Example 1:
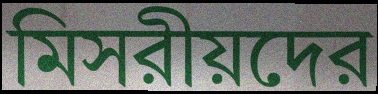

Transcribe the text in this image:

মিসরীয়দের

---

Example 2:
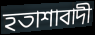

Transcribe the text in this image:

হতাশাবাদী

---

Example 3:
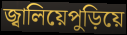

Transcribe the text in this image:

জ্বালিয়েপুড়িয়ে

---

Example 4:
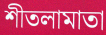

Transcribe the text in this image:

শীতলামাতা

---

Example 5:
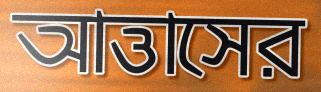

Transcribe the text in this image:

আত্তাসের